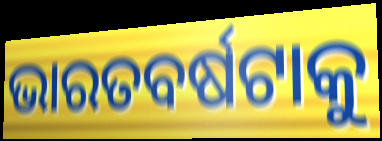
ଭାରତବର୍ଷଟାକୁ